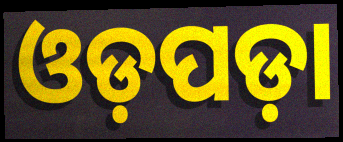
ଓଡ଼ପଡ଼ା